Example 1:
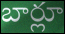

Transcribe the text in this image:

బార్లూ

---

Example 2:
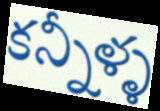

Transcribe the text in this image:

కన్నీళ్ళ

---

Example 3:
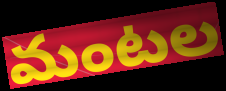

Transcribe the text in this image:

మంటల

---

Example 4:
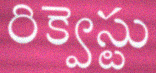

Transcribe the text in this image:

రిక్వెస్టు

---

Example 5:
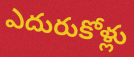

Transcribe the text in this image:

ఎదురుకోళ్లు